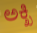
ಅಕ್ಖಿ